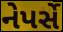
નેપર્સે